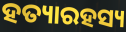
ହତ୍ୟାରହସ୍ୟ